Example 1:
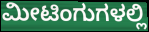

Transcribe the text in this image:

ಮೀಟಿಂಗುಗಳಲ್ಲಿ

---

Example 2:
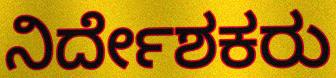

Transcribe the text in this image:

ನಿರ್ದೇಶಕರು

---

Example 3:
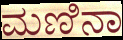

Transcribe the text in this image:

ಮಣಿನಾ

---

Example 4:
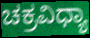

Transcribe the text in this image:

ಚಕ್ರವಿಧ್ಯಾ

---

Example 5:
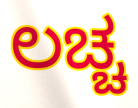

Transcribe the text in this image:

ಲಚ್ಚ